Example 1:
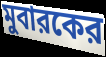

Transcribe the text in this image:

মুবারকের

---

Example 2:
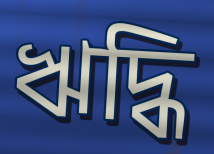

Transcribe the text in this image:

ঋদ্ধি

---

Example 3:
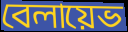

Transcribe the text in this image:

বেলায়েভ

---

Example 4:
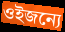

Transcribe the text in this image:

ওইজন্যে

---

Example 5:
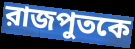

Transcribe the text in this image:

রাজপুতকে